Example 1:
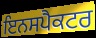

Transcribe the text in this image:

ਇਨਸਪੈਕਟਰ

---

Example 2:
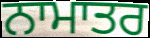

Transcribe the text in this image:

ਨਾਮਾਤਰ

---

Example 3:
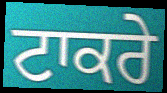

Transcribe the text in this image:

ਟਾਕਰੇ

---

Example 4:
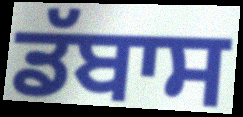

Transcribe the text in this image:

ਡੱਬਾਸ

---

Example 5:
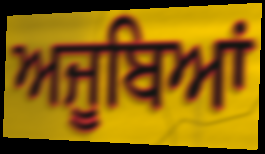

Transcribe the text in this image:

ਅਜੂਬਿਆਂ